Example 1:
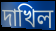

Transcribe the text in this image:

দাখিল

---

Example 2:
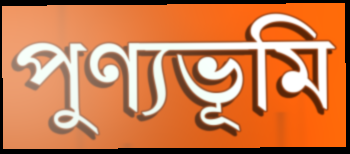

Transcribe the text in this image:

পুণ্যভূমি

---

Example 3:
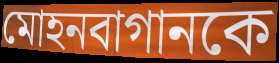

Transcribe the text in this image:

মোহনবাগানকে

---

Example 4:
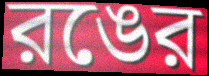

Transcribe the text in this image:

রঙের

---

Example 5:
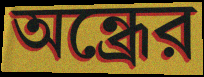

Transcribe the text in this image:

অন্ধ্রের